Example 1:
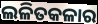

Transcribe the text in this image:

ଲଳିତକଳାର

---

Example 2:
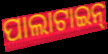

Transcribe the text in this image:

ପାଲାଟାଇନ୍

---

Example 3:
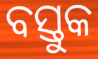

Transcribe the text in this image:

ବସ୍ତୁକ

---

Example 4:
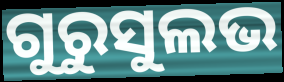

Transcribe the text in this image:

ଗୁରୁସୁଲଭ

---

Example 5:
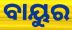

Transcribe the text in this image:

ବାୟୁର